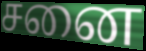
சனை